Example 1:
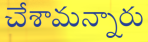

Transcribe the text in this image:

చేశామన్నారు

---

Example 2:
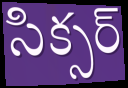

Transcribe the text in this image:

సిక్సర్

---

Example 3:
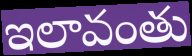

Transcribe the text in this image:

ఇలావంతు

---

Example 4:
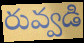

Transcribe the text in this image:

రువ్వడి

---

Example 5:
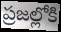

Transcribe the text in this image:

ప్రజల్లోకి